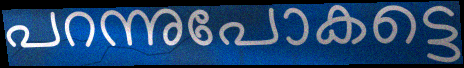
പറന്നുപോകട്ടെ